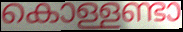
കൊള്ളണ്ടാ